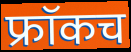
फ्रॉकच